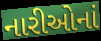
નારીઓનાં